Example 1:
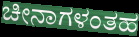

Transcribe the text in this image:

ಚೀನಾಗಳಂತಹ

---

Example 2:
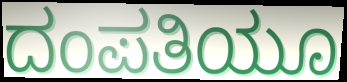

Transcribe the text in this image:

ದಂಪತಿಯೂ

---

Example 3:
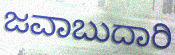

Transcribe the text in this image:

ಜವಾಬುದಾರಿ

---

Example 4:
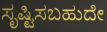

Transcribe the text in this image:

ಸೃಷ್ಟಿಸಬಹುದೇ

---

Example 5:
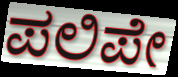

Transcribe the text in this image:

ಪಲಿಪೇ